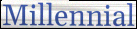
Millennial